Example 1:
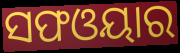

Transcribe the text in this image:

ସଫଓୟାର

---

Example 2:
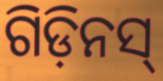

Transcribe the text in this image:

ଗିଡ଼ିନସ୍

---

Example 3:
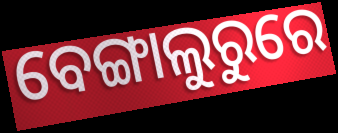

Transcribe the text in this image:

ବେଙ୍ଗାଲୁରୁରେ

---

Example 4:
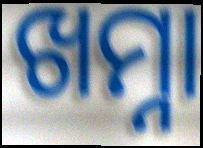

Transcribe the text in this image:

ଖମ୍ନା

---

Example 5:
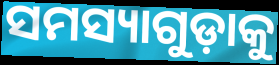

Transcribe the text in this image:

ସମସ୍ୟାଗୁଡ଼ାକୁ